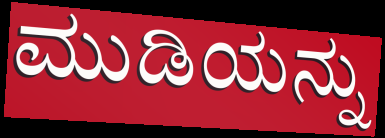
ಮುಡಿಯನ್ನು